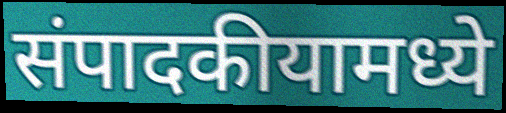
संपादकीयामध्ये